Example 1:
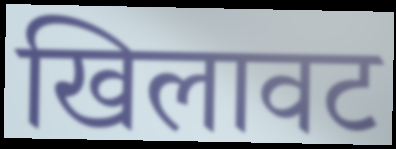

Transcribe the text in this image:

खिलावट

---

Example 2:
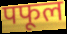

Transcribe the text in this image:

पफूल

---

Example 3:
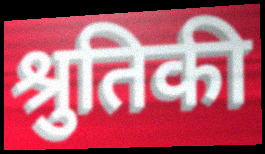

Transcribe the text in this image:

श्रुतिकी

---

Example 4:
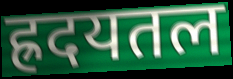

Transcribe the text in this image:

ह्रदयतल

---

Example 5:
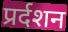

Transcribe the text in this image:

प्रर्दशन